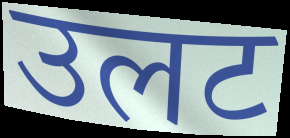
उलट